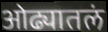
ओढ्यातलं